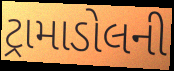
ટ્રામાડોલની